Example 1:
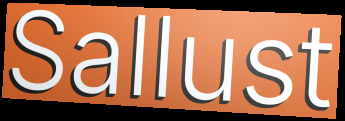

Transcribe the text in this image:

Sallust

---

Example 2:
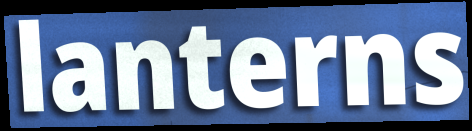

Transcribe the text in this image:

lanterns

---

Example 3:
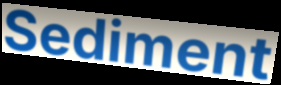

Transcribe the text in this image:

Sediment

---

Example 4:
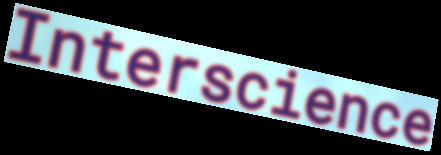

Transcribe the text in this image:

Interscience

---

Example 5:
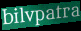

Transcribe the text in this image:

bilvpatra